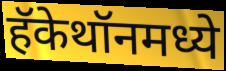
हॅकेथॉनमध्ये